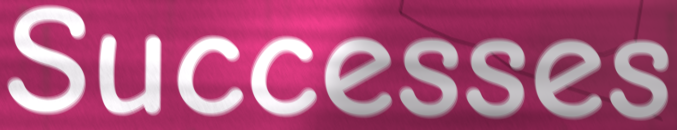
Successes